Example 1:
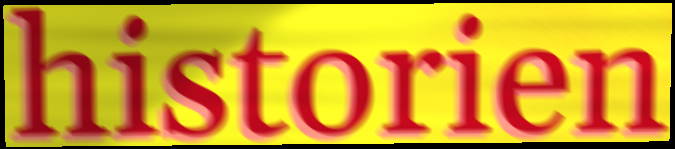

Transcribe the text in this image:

historien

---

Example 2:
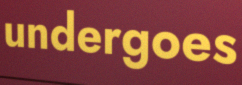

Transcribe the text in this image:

undergoes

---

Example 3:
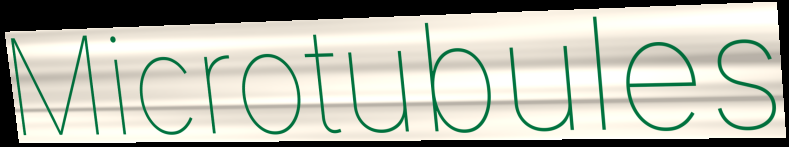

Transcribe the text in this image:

Microtubules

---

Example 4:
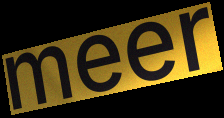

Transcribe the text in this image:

meer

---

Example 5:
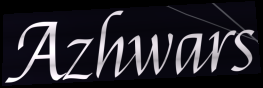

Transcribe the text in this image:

Azhwars